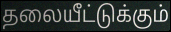
தலையீட்டுக்கும்